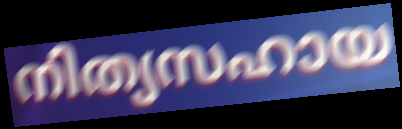
നിത്യസഹായ